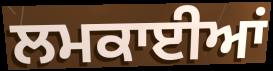
ਲਮਕਾਈਆਂ